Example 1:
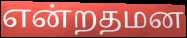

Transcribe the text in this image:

என்றதமன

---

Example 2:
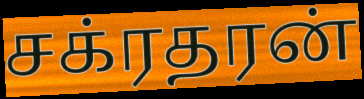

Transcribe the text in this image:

சக்ரதரன்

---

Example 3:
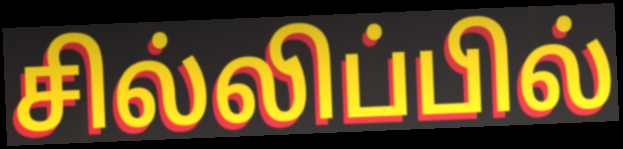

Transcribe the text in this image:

சில்லிப்பில்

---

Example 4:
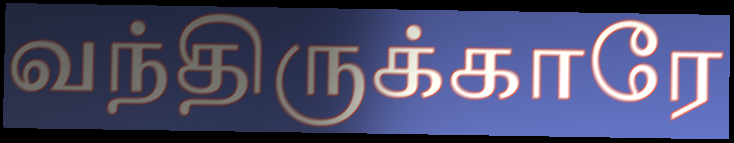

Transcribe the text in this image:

வந்திருக்காரே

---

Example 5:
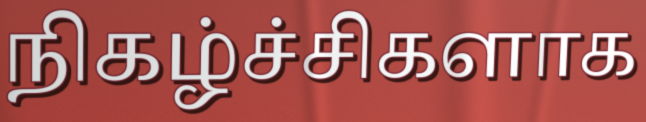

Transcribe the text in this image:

நிகழ்ச்சிகளாக